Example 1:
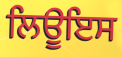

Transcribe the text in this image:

ਲਿਊਇਸ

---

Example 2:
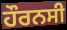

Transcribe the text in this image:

ਹੌਰਨਸੀ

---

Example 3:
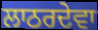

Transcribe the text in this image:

ਲਾਠਰਦੇਵਾ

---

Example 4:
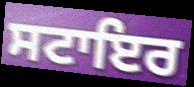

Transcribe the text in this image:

ਸਟਾਇਰ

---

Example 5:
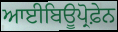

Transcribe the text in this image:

ਆਈਬਿਊਪ੍ਰੋਫ਼ੇਨ